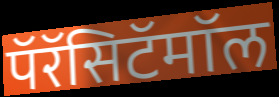
पॅरॅसिटॅमॉल